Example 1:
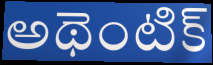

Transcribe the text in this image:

అథెంటిక్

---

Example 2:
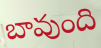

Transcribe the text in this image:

బావుంది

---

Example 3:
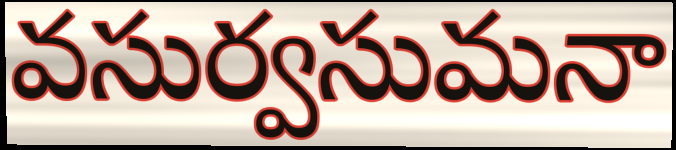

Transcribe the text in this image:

వసుర్వసుమనా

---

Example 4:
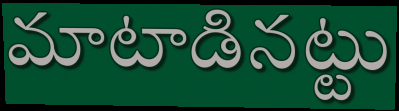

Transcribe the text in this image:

మాటాడినట్టు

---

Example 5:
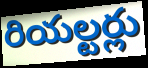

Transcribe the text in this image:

రియల్టర్లు